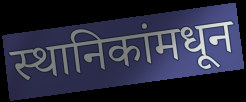
स्थानिकांमधून